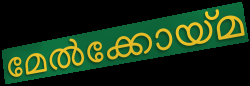
മേൽക്കോയ്മ